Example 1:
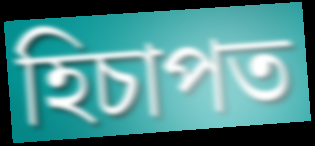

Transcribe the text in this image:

হিচাপত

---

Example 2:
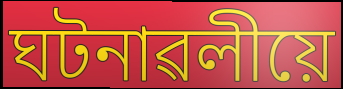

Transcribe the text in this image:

ঘটনাৱলীয়ে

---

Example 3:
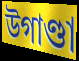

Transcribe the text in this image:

উগাণ্ডা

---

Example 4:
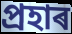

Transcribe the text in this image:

প্ৰহাৰ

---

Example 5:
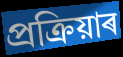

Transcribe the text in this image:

প্ৰক্ৰিয়াৰ